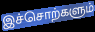
இச்சொற்களும்